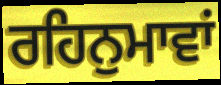
ਰਹਿਨੁਮਾਵਾਂ